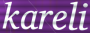
kareli